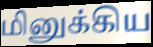
மினுக்கிய